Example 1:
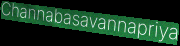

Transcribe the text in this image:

Channabasavannapriya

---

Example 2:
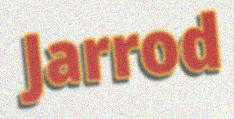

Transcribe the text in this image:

Jarrod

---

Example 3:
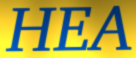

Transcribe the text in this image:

HEA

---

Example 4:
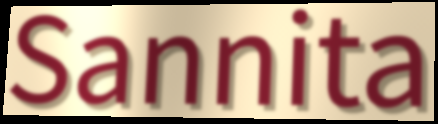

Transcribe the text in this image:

Sannita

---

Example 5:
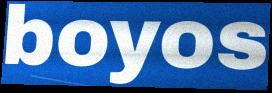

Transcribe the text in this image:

boyos